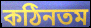
কঠিনতম